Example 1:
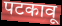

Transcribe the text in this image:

पटकावू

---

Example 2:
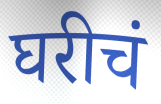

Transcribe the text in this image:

घरीचं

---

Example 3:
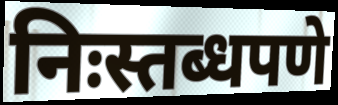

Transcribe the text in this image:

निःस्तब्धपणे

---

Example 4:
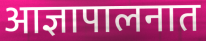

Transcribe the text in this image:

आज्ञापालनात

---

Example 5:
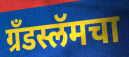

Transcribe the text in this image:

ग्रँडस्लॅमचा